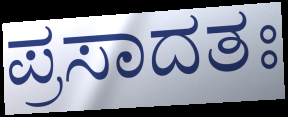
ಪ್ರಸಾದತಃ